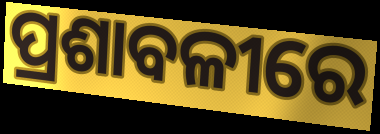
ପ୍ରଶାବଳୀରେ